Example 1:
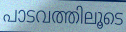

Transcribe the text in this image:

പാടവത്തിലൂടെ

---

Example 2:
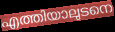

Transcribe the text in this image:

എത്തിയാലുടനെ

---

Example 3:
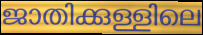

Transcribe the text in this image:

ജാതിക്കുള്ളിലെ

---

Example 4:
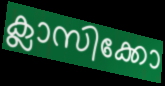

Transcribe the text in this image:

ക്ലാസിക്കോ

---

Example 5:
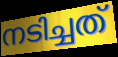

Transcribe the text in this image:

നടിച്ചത്